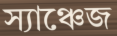
স্যাঞ্চেজ